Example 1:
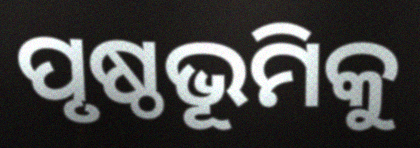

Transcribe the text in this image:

ପୃଷ୍ଠଭୂମିକୁ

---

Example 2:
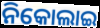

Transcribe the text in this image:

ନିକୋଲାଇ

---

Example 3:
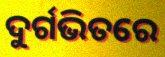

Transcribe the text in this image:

ଦୁର୍ଗଭିତରେ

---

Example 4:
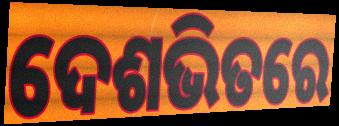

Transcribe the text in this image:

ଦେଶଭିତରେ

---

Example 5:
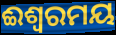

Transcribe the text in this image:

ଈଶ୍ଵରମୟ